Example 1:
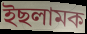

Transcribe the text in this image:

ইছলামক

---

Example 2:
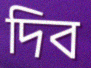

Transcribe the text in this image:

দিব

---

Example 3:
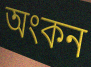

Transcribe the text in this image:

অংকন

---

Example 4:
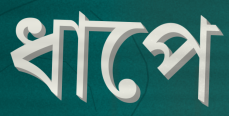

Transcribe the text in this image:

ধাপে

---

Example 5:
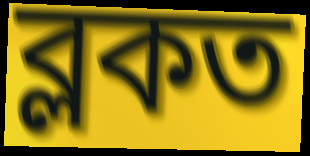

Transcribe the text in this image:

ব্লকত